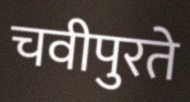
चवीपुरते